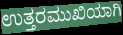
ಉತ್ತರಮುಖಿಯಾಗಿ